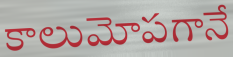
కాలుమోపగానే